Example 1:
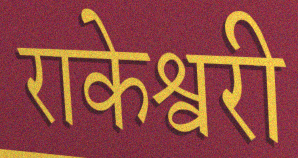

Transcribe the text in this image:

राकेश्वरी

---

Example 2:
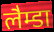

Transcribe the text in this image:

लैम्डा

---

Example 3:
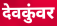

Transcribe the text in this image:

देवकुंवर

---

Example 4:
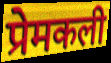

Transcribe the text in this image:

प्रेमकली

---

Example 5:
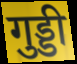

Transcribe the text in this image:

गुड्डी